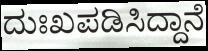
ದುಃಖಪಡಿಸಿದ್ದಾನೆ